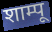
शाम्पू